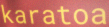
karatoa